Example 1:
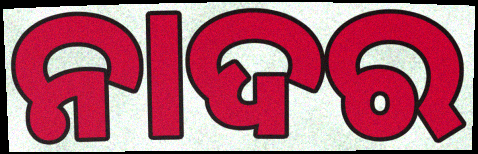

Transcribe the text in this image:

ନାଦର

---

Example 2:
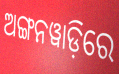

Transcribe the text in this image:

ଅଙ୍ଗନୱାଡ଼ିରେ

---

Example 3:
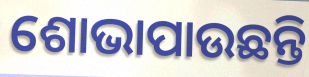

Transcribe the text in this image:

ଶୋଭାପାଉଛନ୍ତି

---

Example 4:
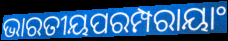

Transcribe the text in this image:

ଭାରତୀୟପରମ୍ପରାୟାଂ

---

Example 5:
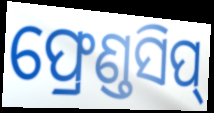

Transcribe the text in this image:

ଫ୍ରେଣ୍ଡସିପ୍